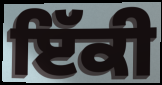
ਇੱਕੀ